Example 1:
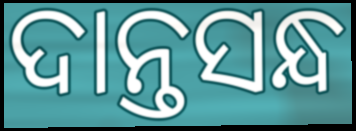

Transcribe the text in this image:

ଦାନ୍ତସନ୍ଧ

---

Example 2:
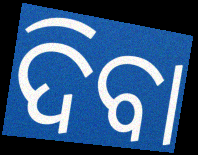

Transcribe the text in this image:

ଦିବା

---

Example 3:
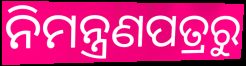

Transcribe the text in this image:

ନିମନ୍ତ୍ରଣପତ୍ରରୁ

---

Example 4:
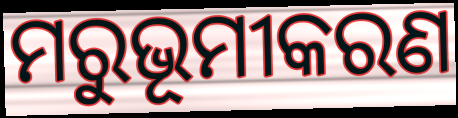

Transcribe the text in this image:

ମରୁଭୂମୀକରଣ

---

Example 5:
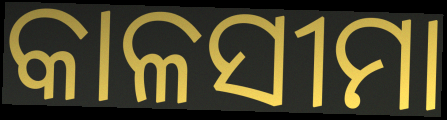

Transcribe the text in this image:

କାଳସୀମା